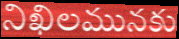
నిఖిలమునకు